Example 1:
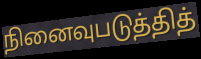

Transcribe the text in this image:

நினைவுபடுத்தித்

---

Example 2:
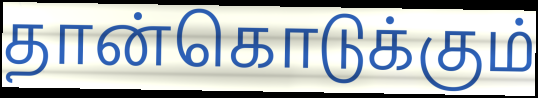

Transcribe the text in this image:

தான்கொடுக்கும்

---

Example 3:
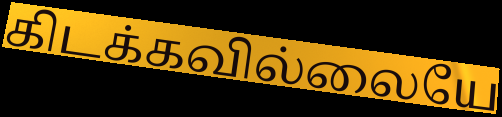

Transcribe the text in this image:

கிடக்கவில்லையே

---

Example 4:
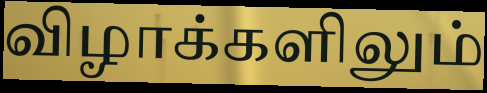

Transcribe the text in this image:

விழாக்களிலும்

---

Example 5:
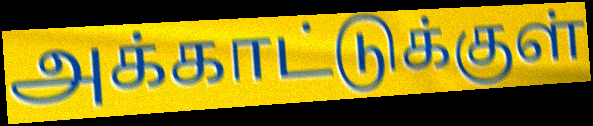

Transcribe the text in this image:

அக்காட்டுக்குள்